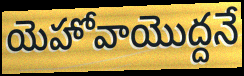
యెహోవాయొద్దనే